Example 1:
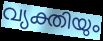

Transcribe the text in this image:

വ്യക്തിയും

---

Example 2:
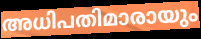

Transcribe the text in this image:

അധിപതിമാരായും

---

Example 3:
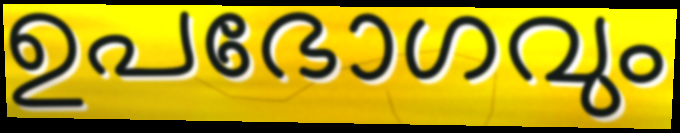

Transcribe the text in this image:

ഉപഭോഗവും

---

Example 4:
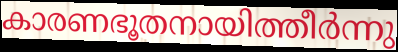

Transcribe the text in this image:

കാരണഭൂതനായിത്തീർന്നു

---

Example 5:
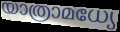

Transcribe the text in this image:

യാത്രാമധ്യേ